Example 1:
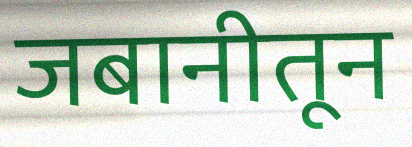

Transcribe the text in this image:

जबानीतून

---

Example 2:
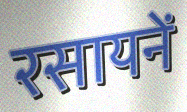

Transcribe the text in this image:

रसायनें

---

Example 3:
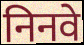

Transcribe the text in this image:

निनवे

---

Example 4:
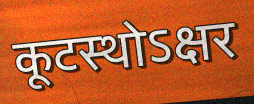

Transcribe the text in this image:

कूटस्थोऽक्षर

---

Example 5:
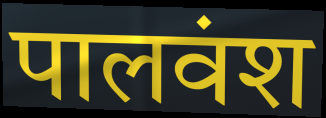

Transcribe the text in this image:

पालवंश